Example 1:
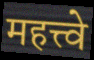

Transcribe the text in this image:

महत्त्वे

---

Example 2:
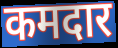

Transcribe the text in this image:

कमदार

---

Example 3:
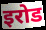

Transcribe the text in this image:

इरोड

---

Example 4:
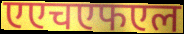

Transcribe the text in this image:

एएचएफएल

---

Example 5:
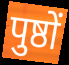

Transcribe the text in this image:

पुष्ठों